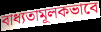
বাধ্যতামূলকভাবে